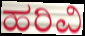
ಹರಿವಿ